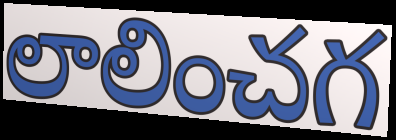
లాలించగ